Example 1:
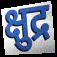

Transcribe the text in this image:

क्षुद्र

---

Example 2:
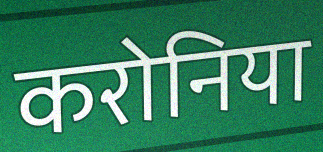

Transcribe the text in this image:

करोनिया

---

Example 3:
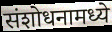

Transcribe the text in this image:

संशोधनामध्ये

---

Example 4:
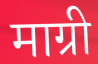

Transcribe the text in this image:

माग्री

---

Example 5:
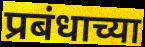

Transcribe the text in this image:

प्रबंधाच्या